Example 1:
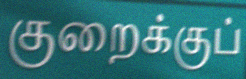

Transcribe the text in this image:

குறைக்குப்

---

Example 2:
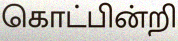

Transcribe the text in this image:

கொட்பின்றி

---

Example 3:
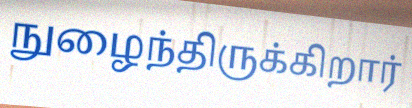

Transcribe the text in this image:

நுழைந்திருக்கிறார்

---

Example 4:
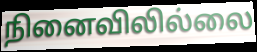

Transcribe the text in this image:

நினைவிலில்லை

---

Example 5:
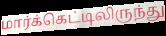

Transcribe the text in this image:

மார்க்கெட்டிலிருந்து